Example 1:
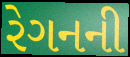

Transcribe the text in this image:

રેગનની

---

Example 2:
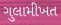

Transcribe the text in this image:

ગુલામીખત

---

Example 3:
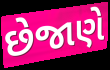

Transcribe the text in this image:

છેજાણે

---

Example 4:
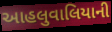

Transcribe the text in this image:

આહલુવાલિયાની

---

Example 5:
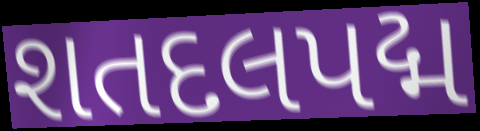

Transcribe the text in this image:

શતદલપદ્મ